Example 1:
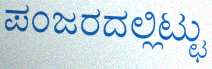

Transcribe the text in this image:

ಪಂಜರದಲ್ಲಿಟ್ಟು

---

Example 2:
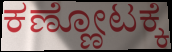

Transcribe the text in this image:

ಕಣ್ಣೋಟಕ್ಕೆ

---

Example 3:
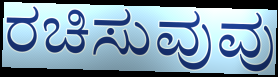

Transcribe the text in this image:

ರಚಿಸುವುವು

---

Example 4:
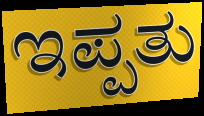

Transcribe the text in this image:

ಇಪ್ಪತು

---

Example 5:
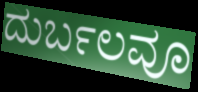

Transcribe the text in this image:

ದುರ್ಬಲವೂ